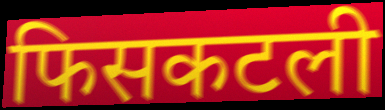
फिसकटली